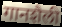
गानशैली